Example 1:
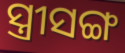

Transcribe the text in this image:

ସ୍ତ୍ରୀସଙ୍ଗ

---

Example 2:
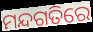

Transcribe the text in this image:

ମନ୍ଦଗତିରେ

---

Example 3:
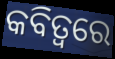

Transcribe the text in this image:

କବିତ୍ୱରେ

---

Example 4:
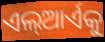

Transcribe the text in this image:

ଏଲ୍ଆର୍ଏକୁ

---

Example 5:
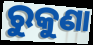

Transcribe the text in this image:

ରୁକୁଣା